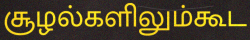
சூழல்களிலும்கூட